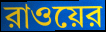
রাওয়ের